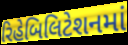
રિહેબિલિટેશનમાં